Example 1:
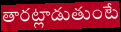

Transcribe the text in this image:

తారట్లాడుతుంటే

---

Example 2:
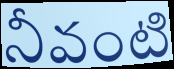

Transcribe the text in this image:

నీవంటి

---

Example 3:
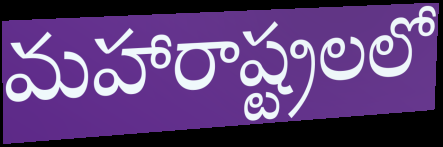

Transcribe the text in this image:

మహారాష్ట్రలలో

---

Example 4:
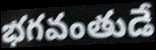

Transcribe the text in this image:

భగవంతుడే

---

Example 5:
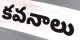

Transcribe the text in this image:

కవనాలు